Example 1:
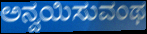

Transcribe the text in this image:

ಅನ್ವಯಿಸುವಂಥ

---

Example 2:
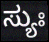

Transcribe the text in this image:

ಸ್ಯುಃ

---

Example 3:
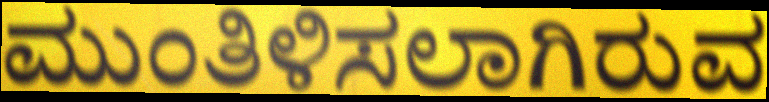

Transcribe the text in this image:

ಮುಂತಿಳಿಸಲಾಗಿರುವ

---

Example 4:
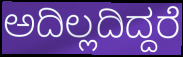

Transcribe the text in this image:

ಅದಿಲ್ಲದಿದ್ದರೆ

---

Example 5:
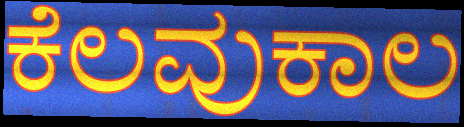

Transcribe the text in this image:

ಕೆಲವುಕಾಲ